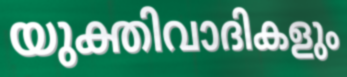
യുക്തിവാദികളും